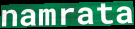
namrata